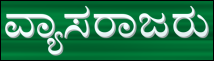
ವ್ಯಾಸರಾಜರು